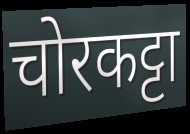
चोरकट्टा